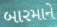
બારમાને